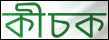
কীচক